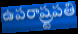
ఉపరాష్ర్టపతి